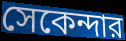
সেকেন্দার